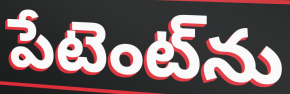
పేటెంట్‌ను